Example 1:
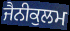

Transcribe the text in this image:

ਜੈਨੀਕੁਲਮ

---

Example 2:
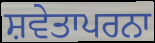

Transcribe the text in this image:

ਸ਼ਵੇਤਾਪਰਨਾ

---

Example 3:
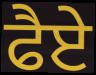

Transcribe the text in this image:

ਫੈਏ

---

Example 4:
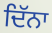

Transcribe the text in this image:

ਦਿੱਨਾ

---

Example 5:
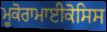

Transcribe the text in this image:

ਮੂਕੋਰਾਮਾਈਕੋਸਿਸ